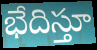
భేదిస్తూ